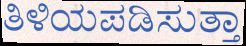
ತಿಳಿಯಪಡಿಸುತ್ತಾ